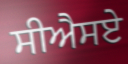
ਸੀਐਸਏ